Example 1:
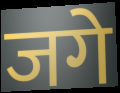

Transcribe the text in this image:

जगे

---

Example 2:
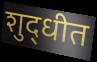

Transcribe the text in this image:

शुद्धीत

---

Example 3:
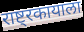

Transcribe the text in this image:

राष्ट्रकायाला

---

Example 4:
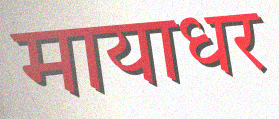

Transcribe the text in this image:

मायाधर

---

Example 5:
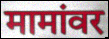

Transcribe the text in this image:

मामांवर